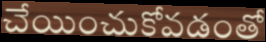
చేయించుకోవడంతో